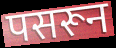
पसरून